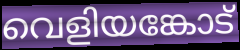
വെളിയങ്കോട്